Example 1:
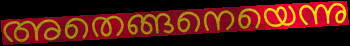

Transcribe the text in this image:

അതെങ്ങനെയെന്നു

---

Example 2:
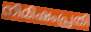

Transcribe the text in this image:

നിമിഷംപ്രതി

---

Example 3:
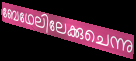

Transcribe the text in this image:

ബേഥേലിലേക്കുചെന്നു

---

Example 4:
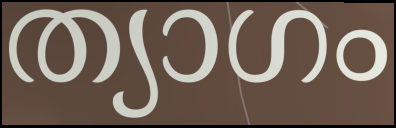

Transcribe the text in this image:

ത്യാഗം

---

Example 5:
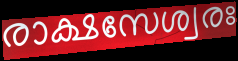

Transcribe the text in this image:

രാക്ഷസേശ്വരഃ